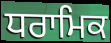
ਧਰਾਮਿਕ